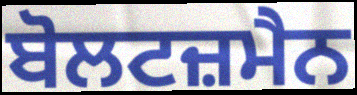
ਬੋਲਟਜ਼ਮੈਨ